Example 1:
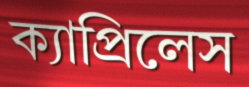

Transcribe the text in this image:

ক্যাপ্রিলেস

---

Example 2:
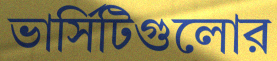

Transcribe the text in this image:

ভার্সিটিগুলোর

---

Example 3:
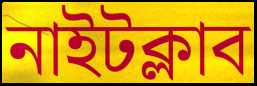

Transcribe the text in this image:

নাইটক্লাব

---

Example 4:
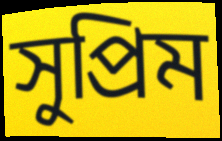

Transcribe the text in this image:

সুপ্রিম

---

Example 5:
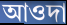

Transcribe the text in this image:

আওদা